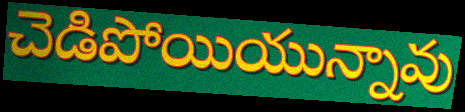
చెడిపోయియున్నావు